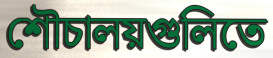
শৌচালয়গুলিতে